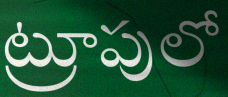
ట్రూపులో